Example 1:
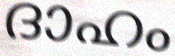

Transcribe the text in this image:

ദാഹം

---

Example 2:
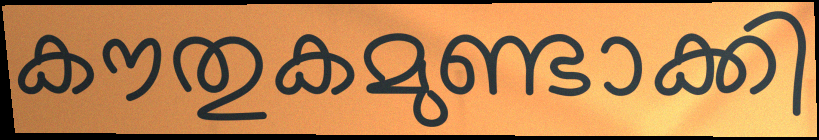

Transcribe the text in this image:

കൗതുകമുണ്ടാക്കി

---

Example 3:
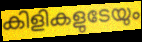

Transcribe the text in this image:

കിളികളുടേയും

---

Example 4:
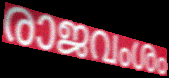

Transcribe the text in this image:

രാജവംശം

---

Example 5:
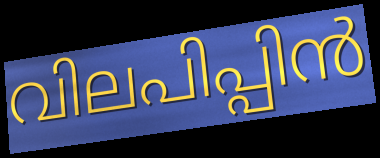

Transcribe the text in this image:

വിലപിപ്പിൻ